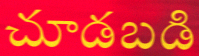
చూడబడి